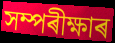
সম্পৰীক্ষাৰ